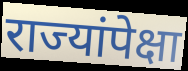
राज्यांपेक्षा